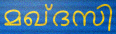
മഖ്ദസി